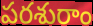
పరశురాం